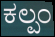
ಕಲ್ಪಂ